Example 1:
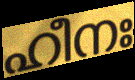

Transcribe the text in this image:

ഹീനഃ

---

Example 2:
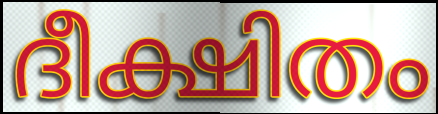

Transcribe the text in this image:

ദീക്ഷിതം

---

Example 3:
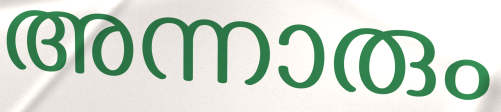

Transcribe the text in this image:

അന്നാരും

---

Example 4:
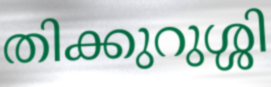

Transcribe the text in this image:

തിക്കുറുശ്ശി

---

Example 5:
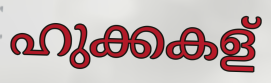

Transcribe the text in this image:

ഹുക്കകള്